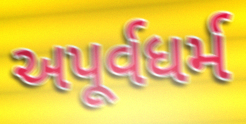
અપૂર્વધર્મ